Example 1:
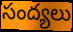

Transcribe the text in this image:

సంద్యలు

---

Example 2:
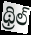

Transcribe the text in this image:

థ్రిల్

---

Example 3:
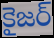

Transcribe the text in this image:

కైజర్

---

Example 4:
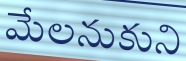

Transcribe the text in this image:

మేలనుకుని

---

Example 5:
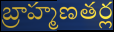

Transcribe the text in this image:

బ్రాహ్మణతర్ల